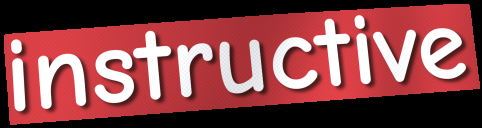
instructive